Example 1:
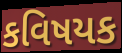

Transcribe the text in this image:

કવિષયક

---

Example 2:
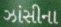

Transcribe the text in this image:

ઝાંસીના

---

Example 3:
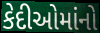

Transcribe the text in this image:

કેદીઓમાંનો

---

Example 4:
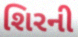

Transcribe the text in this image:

શિરની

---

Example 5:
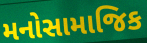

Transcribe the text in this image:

મનોસામાજિક